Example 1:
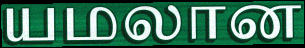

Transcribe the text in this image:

யமலான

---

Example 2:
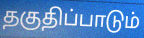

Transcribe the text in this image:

தகுதிப்பாடும்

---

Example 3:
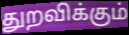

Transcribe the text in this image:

துறவிக்கும்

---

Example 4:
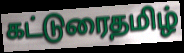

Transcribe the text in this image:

கட்டுரைதமிழ்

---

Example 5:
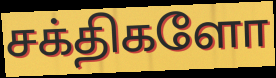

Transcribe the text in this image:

சக்திகளோ